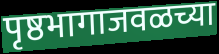
पृष्ठभागाजवळच्या